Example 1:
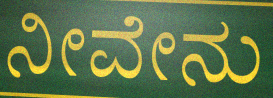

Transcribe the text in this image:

ನೀವೇನು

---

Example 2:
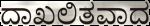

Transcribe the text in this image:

ದಾಖಲಿತವಾದ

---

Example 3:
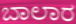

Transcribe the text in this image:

ಬಾಲಾರ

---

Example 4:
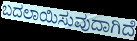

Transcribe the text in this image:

ಬದಲಾಯಿಸುವುದಾಗಿದೆ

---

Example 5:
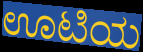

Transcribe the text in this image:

ಊಟಿಯ